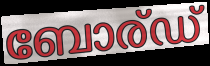
ബോര്ഡ്